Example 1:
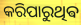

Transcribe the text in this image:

କରିପାରୁଥିଵ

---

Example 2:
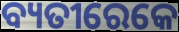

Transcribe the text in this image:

ବ୍ୟତୀରେକେ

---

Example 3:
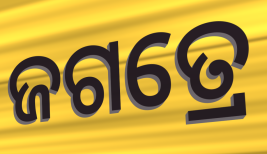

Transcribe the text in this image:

ଜଗତ୍ରେ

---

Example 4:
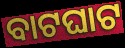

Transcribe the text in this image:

ବାଟଘାଟ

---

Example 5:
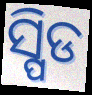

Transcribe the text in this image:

ସ୍ପିଡ